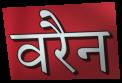
वरैन